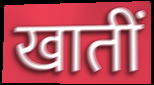
खातीं